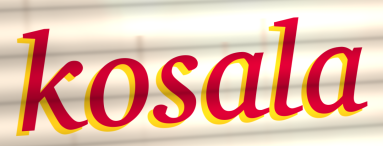
kosala